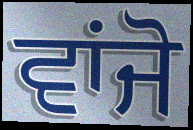
ਵਾਂਜੋ